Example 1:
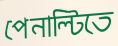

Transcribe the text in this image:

পেনাল্টিতে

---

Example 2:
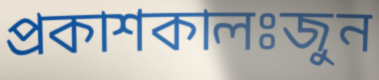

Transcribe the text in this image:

প্রকাশকালঃজুন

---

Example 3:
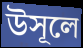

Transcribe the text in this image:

উসূলে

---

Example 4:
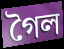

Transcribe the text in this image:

গৈল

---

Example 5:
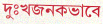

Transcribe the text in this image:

দুঃখজনকভাবে